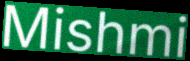
Mishmi